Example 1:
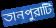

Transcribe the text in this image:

তানপুরাটি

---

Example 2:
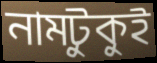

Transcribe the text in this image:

নামটুকুই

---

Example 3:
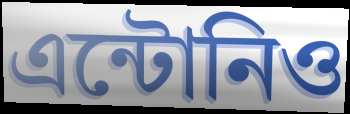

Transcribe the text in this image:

এন্টোনিও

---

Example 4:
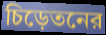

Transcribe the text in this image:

চিড়েতনের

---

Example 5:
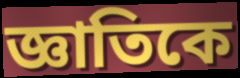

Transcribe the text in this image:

জ্ঞাতিকে